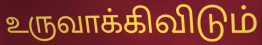
உருவாக்கிவிடும்